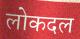
लोकदल